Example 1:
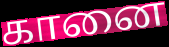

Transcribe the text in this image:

கானை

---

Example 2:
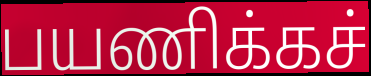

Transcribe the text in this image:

பயணிக்கச்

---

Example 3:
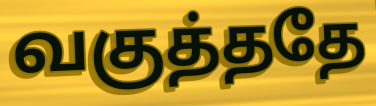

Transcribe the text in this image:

வகுத்ததே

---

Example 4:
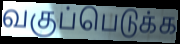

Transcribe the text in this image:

வகுப்பெடுக்க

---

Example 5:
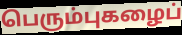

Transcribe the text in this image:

பெரும்புகழைப்